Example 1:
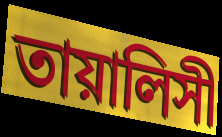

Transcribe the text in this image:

তায়ালিসী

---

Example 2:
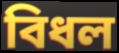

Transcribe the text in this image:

বিধল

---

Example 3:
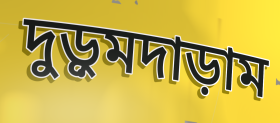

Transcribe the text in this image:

দুড়ুমদাড়াম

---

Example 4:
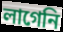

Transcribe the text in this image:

লাগেনি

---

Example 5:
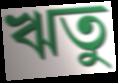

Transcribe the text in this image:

ঋতু